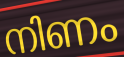
നിണം